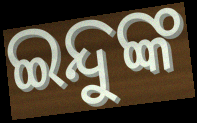
ଇନ୍ଦୁଙ୍କ